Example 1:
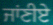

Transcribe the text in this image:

ਜਾਂਣੀਏ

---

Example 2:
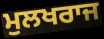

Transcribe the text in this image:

ਮੁਲਖਰਾਜ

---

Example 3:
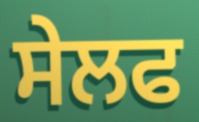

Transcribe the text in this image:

ਸੇਲਫ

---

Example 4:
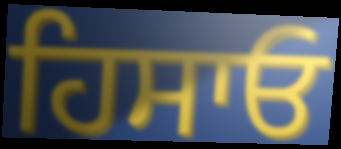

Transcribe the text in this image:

ਹਿਸਾਓ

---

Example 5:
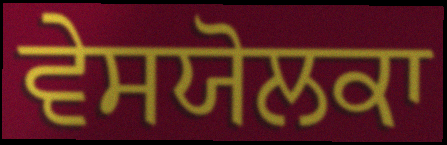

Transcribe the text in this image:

ਵੇਸਯੋਲਕਾ